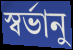
স্বর্ভানু